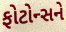
ફોટોન્સને